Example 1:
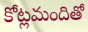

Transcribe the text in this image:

కోట్లమందితో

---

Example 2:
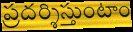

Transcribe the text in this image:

ప్రదర్శిస్తుంటాం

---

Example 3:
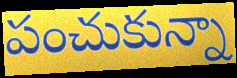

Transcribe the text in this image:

పంచుకున్నా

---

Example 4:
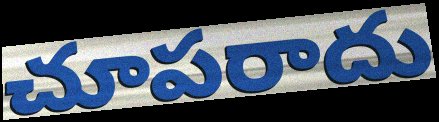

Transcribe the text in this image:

చూపరాదు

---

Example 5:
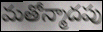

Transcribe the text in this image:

మతోన్మాదపు